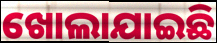
ଖୋଲାଯାଇଛି